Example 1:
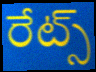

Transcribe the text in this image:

రేట్స్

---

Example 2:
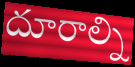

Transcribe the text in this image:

దూరాల్ని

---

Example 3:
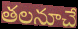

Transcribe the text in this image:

తలనూచే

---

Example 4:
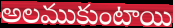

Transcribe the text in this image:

అలముకుంటాయి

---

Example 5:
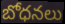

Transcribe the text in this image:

బోధనలు